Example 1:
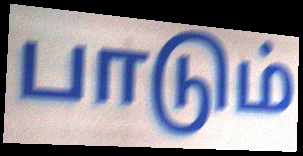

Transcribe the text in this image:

பாடும்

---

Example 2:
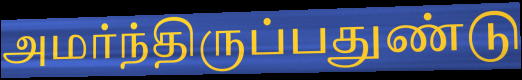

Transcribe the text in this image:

அமர்ந்திருப்பதுண்டு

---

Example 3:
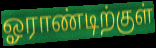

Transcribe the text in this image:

ஓராண்டிற்குள்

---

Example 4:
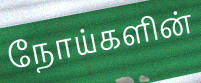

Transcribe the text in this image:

நோய்களின்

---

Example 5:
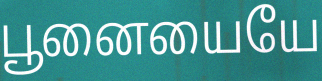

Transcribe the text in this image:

பூனையையே